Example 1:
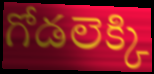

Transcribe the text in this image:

గోడలెక్కి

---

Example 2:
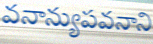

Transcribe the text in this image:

వనాన్యుపవనాని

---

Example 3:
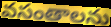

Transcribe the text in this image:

వసంతాలను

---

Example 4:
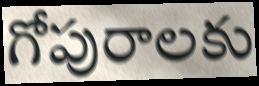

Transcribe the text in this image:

గోపురాలకు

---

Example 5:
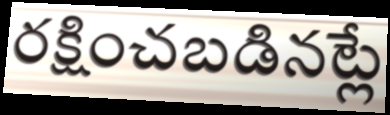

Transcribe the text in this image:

రక్షించబడినట్లే